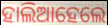
ହାଲିଆହେଲେ